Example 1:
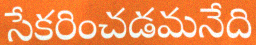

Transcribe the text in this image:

సేకరించడమనేది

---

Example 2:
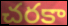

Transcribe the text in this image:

చరకా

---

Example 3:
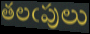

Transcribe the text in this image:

తలఁపులు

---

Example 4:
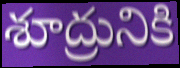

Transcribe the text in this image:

శూద్రునికి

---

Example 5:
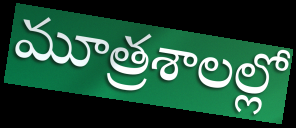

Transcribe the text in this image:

మూత్రశాలల్లో